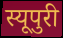
स्यूपुरी